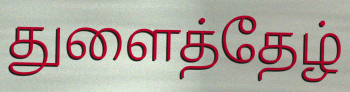
துளைத்தேழ்